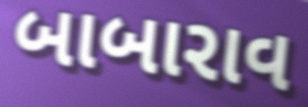
બાબારાવ